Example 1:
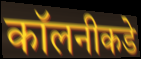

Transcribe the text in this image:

कॉलनीकडे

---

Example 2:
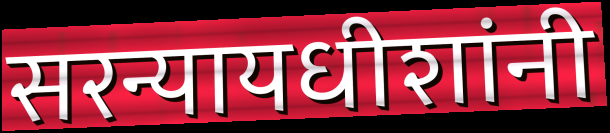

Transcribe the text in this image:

सरन्यायधीशांनी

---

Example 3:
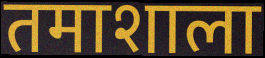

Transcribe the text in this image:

तमाशाला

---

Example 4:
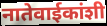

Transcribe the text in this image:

नातेवाईकांशी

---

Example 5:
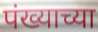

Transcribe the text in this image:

पंख्याच्या